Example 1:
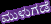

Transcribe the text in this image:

ಮುಳುಗಡೆ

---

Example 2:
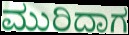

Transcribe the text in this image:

ಮುರಿದಾಗ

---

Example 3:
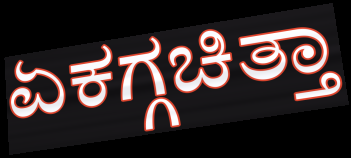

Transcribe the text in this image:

ಏಕಗ್ಗಚಿತ್ತಾ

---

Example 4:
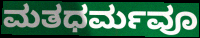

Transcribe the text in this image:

ಮತಧರ್ಮವೂ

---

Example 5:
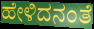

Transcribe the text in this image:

ಹೇಳಿದನಂತೆ